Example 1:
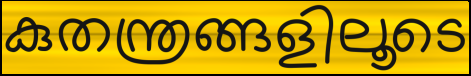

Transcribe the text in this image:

കുതന്ത്രങ്ങളിലൂടെ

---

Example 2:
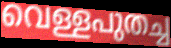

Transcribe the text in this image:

വെള്ളപുതച്ച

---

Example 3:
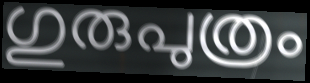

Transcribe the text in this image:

ഗുരുപുത്രം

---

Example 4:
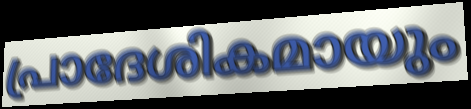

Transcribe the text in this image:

പ്രാദേശികമായും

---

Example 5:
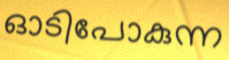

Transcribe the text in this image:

ഓടിപോകുന്ന